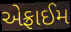
એફ્રાઈમ